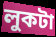
লুকটা